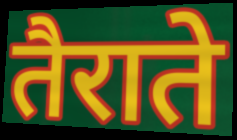
तैराते